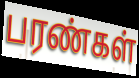
பரண்கள்